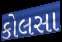
કોલસા